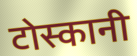
टोस्कानी